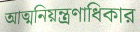
আত্মনিয়ন্ত্রণাধিকার